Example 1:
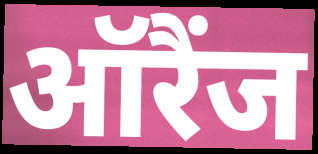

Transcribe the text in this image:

ऑरैंज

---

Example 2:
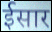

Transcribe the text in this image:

ईसार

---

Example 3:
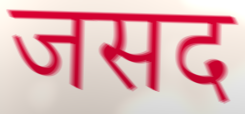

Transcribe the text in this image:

जसद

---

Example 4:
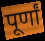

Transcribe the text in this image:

पूर्णां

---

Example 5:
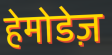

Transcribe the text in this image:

हेमोडेज़